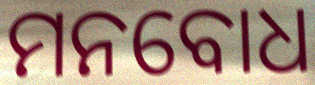
ମନବୋଧ